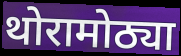
थोरामोठ्या